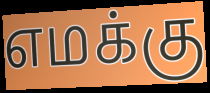
எமக்கு